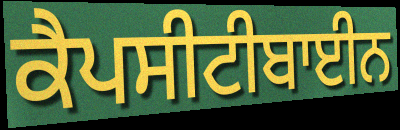
ਕੈਪਸੀਟੀਬਾਈਨ